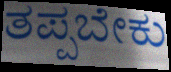
ತಪ್ಪಬೇಕು